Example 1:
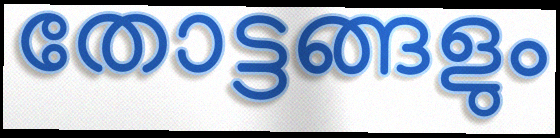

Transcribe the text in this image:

തോട്ടങ്ങളും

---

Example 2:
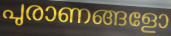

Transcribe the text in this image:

പുരാണങ്ങളോ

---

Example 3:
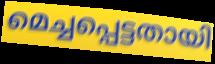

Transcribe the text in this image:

മെച്ചപ്പെട്ടതായി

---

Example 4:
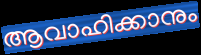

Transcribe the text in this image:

ആവാഹിക്കാനും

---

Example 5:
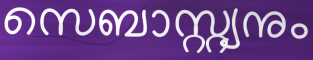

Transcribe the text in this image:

സെബാസ്റ്റ്യനും